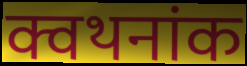
क्वथनांक